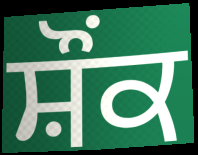
ਸ਼ੌੰਕ